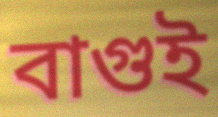
বাগুই